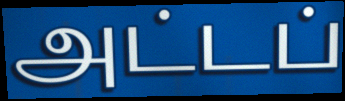
அட்டப்